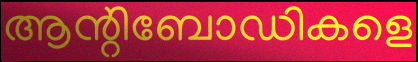
ആന്റിബോഡികളെ